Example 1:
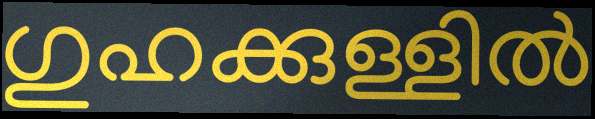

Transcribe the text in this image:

ഗുഹക്കുള്ളിൽ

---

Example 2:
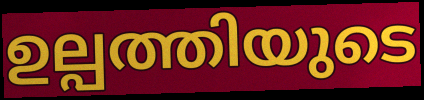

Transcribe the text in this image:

ഉല്പത്തിയുടെ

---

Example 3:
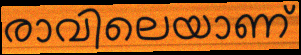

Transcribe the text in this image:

രാവിലെയാണ്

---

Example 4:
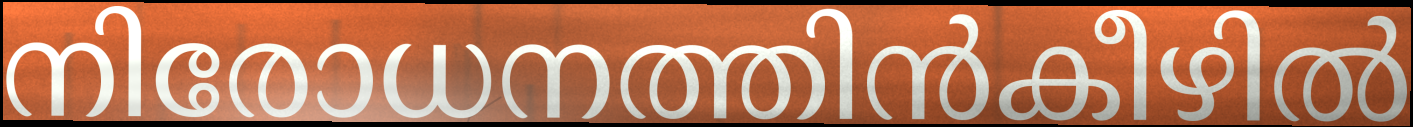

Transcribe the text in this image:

നിരോധനത്തിൻകീഴിൽ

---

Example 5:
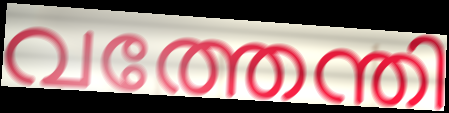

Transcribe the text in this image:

വത്തേന്തി